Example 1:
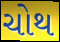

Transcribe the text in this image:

ચોથ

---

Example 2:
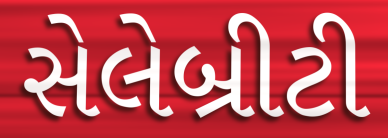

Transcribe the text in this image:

સેલેબ્રીટી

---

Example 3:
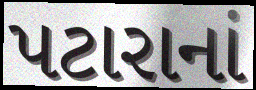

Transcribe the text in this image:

પટારાનાં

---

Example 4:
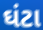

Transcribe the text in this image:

ઘંટા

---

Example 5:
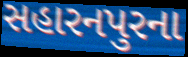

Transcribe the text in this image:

સહારનપુરના